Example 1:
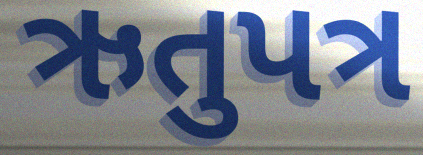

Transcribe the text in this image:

ઋતુપત્ર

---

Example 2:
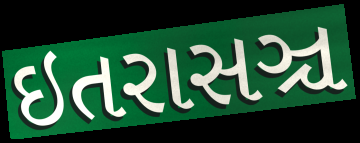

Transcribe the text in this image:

ઇતરાસઞ્ચ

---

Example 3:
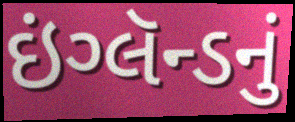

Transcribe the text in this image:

ઇંગ્લૅન્ડનું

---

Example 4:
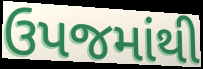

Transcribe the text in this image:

ઉપજમાંથી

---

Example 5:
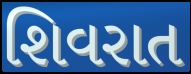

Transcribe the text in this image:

શિવરાત